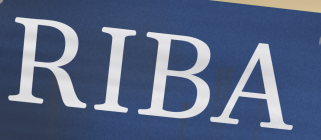
RIBA